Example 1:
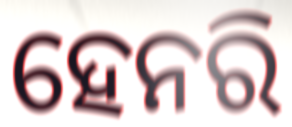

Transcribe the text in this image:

ହେନରି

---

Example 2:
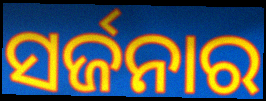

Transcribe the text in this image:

ସର୍ଜନାର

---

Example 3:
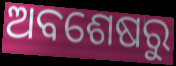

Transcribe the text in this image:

ଅବଶେଷରୁ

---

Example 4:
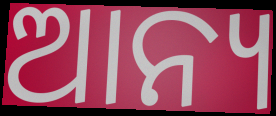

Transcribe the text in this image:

ଆନ୍ୟ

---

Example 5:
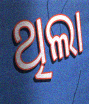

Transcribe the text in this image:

ଥିଲା